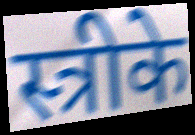
स्त्रीके